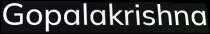
Gopalakrishna